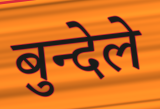
बुन्देले